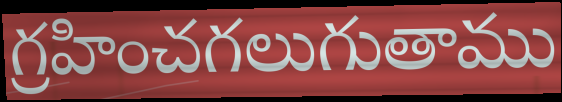
గ్రహించగలుగుతాము